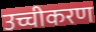
उच्चीकरण